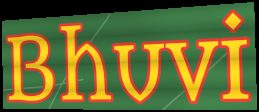
Bhuvi